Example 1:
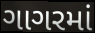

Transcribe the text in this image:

ગાગરમાં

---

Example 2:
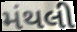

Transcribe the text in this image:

મંથલી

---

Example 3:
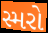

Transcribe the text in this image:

સ્મરો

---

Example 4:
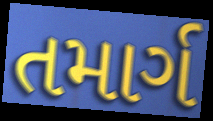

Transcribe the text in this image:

તમાર્ગ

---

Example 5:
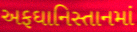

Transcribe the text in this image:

અફઘાનિસ્તાનમાં